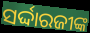
ସର୍ଦ୍ଦାରଜୀଙ୍କ